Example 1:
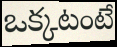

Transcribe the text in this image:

ఒక్కటంటే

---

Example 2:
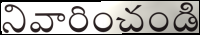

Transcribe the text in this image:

నివారించండి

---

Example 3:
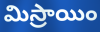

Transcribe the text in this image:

మిస్రాయిం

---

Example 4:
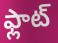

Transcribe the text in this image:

ఫ్లాట్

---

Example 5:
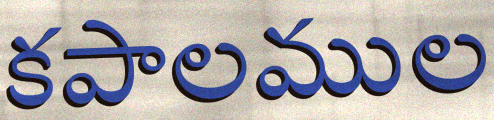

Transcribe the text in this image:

కపాలముల